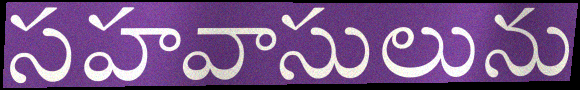
సహవాసులును